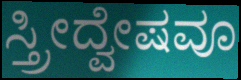
ಸ್ತ್ರೀದ್ವೇಷವೂ